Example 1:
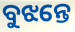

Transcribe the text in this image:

ବୁଝନ୍ତେ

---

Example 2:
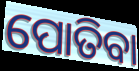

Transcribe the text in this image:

ପୋତିବା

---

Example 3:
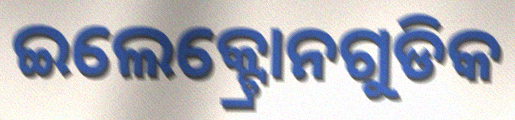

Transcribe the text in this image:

ଇଲେକ୍ଟ୍ରୋନଗୁଡିକ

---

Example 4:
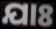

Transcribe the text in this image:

ଯାଃ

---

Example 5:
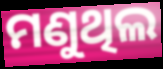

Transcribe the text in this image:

ମଣୁଥିଲ